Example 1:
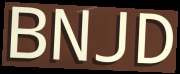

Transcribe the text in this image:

BNJD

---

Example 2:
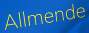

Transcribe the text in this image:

Allmende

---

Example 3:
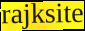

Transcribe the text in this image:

rajksite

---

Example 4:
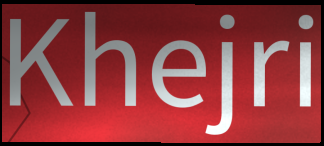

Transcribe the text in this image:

Khejri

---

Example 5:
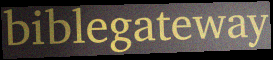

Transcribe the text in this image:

biblegateway